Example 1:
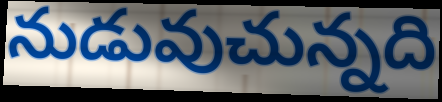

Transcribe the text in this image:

నుడువుచున్నది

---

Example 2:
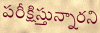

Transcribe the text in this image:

పరీక్షిస్తున్నారని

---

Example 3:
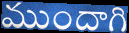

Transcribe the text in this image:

ముందాగి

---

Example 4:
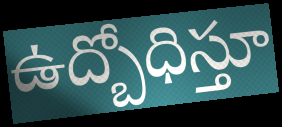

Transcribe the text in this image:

ఉద్బోధిస్తూ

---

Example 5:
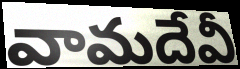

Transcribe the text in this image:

వామదేవీ